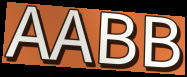
AABB